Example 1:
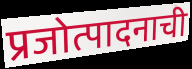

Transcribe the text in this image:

प्रजोत्पादनाची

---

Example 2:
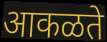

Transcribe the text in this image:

आकळते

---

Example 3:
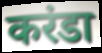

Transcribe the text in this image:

करंडा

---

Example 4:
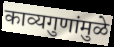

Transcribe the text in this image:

काव्यगुणांमुळे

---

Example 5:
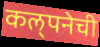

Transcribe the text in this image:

कल्पनेची